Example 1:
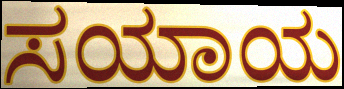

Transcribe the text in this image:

ಸಯಾಯ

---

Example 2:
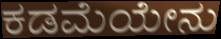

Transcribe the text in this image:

ಕಡಮೆಯೇನು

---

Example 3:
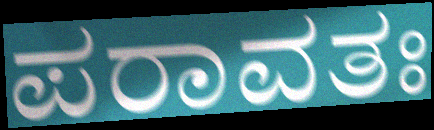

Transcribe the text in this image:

ಪರಾವತಃ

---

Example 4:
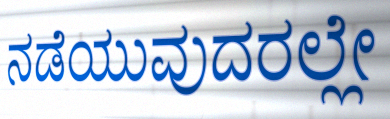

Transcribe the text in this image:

ನಡೆಯುವುದರಲ್ಲೇ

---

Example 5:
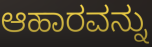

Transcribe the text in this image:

ಆಹಾರವನ್ನು